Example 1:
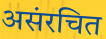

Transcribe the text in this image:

असंरचित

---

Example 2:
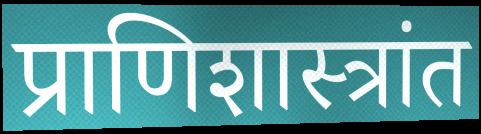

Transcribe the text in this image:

प्राणिशास्त्रांत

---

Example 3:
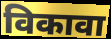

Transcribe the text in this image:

विकावा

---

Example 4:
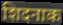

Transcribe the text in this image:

शिदनाक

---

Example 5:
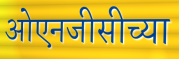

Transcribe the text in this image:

ओएनजीसीच्या